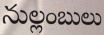
నుల్లంబులు